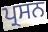
ਪ੍ਰਸਨ